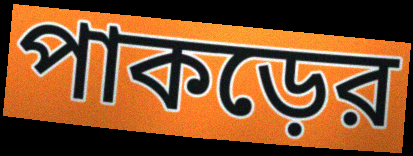
পাকড়ের